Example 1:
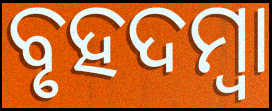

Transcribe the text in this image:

ବୃହଦମ୍ବା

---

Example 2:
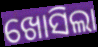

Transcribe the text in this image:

ଖୋସିଲା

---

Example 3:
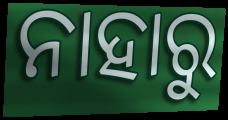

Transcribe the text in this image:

ନାହାରୁ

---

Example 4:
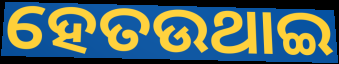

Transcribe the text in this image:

ହେତଉଥାଇ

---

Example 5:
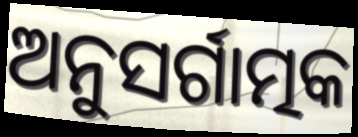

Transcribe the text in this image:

ଅନୁସର୍ଗାତ୍ମକ